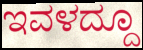
ಇವಳದ್ದೂ